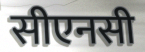
सीएनसी